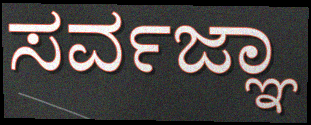
ಸರ್ವಜ್ಞಾ